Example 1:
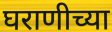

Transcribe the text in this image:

घराणीच्या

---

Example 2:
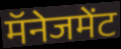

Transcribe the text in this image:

मॅनेजमेंट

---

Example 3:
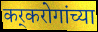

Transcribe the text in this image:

कर्करोगांच्या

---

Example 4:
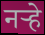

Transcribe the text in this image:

नऱ्हे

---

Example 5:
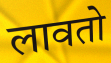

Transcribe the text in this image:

लावतो